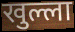
खुल्ला